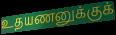
உதயணனுக்குக்